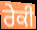
ਰੇਕੀ